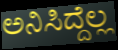
ಅನಿಸಿದ್ದೆಲ್ಲ